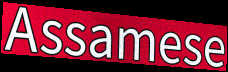
Assamese